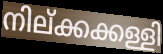
നില്ക്കക്കള്ളി